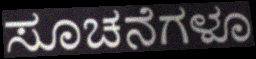
ಸೂಚನೆಗಳೂ